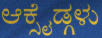
ಆಕ್ಸೈಡ್ಗಳು